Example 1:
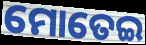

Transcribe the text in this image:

ମୋତେଇ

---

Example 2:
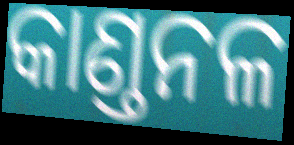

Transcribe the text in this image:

କାଣ୍ଡନଳ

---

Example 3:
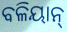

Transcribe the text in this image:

ବଳିୟାନ୍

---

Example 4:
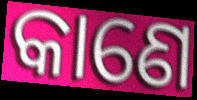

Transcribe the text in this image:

କାଣେ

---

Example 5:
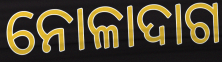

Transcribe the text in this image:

ନୋଳାଦାଗ